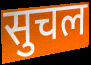
सुचल